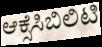
ಆಕ್ಸೆಸಿಬಿಲಿಟಿ